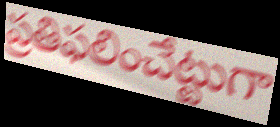
ప్రతిఫలించేట్టుగా